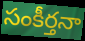
సంకీర్తనా